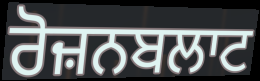
ਰੋਜ਼ਨਬਲਾਟ